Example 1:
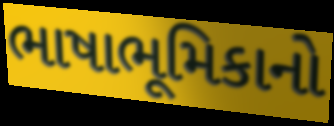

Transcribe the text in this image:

ભાષાભૂમિકાનો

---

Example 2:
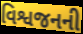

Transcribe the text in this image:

વિશ્વજનની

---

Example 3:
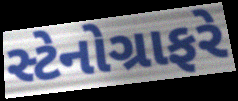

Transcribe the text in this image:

સ્ટેનોગ્રાફરે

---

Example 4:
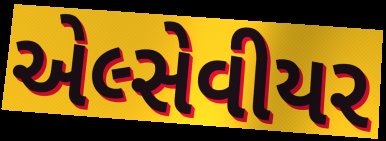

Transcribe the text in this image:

એલ્સેવીયર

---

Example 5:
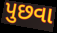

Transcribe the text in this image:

પુછવા